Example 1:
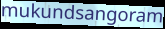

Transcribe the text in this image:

mukundsangoram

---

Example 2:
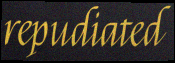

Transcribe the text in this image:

repudiated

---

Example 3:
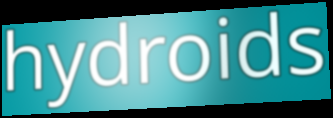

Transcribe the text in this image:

hydroids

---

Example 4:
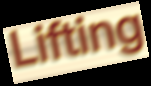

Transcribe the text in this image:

Lifting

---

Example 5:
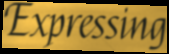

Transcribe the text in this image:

Expressing